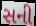
સની